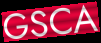
GSCA